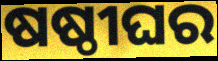
ଷଷ୍ଠୀଘର